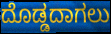
ದೊಡ್ಡದಾಗಲು